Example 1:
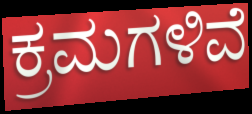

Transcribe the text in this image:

ಕ್ರಮಗಳಿವೆ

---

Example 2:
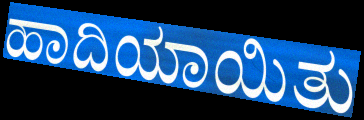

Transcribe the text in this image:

ಹಾದಿಯಾಯಿತು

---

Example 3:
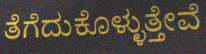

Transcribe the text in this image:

ತೆಗೆದುಕೊಳ್ಳುತ್ತೇವೆ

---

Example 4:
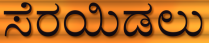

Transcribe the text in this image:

ಸೆರಯಿಡಲು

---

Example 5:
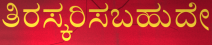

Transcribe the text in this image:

ತಿರಸ್ಕರಿಸಬಹುದೇ